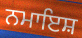
ਨਮਾਇਸ਼